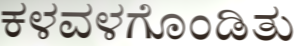
ಕಳವಳಗೊಂಡಿತು